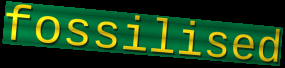
fossilised